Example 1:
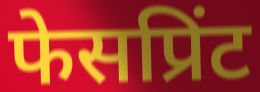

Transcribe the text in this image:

फेसप्रिंट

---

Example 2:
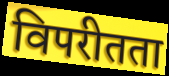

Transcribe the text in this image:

विपरीतता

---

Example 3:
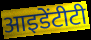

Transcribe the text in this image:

आइडेंटीटी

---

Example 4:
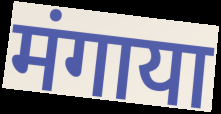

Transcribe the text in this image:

मंगाया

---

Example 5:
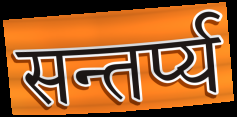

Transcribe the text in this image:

सन्तर्प्य